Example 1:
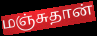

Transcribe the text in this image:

மஞ்சுதான்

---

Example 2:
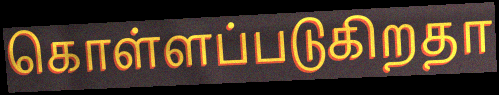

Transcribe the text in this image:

கொள்ளப்படுகிறதா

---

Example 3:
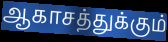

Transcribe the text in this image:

ஆகாசத்துக்கும்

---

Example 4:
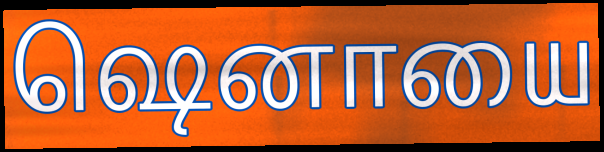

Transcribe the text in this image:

ஷெனாயை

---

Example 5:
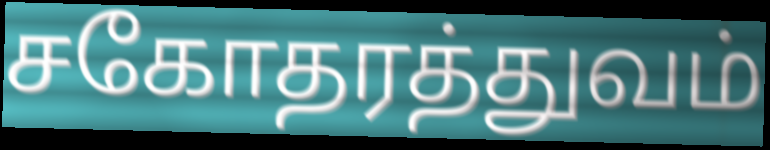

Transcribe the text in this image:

சகோதரத்துவம்